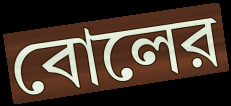
বোলের